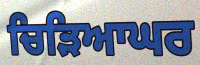
ਚਿੜਿਆਘਰ